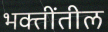
भक्तींतील